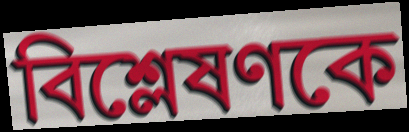
বিশ্লেষণকে